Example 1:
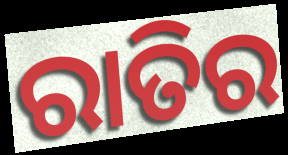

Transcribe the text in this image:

ରାତିର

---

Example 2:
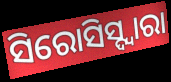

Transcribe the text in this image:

ସିରୋସିସ୍ଦ୍ୱାରା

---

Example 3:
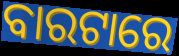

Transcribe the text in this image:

ବାରଟାରେ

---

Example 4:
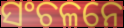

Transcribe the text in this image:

ସଂଚଳନେ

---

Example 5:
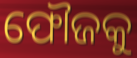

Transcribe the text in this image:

ଫୌଜକୁ